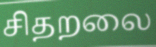
சிதறலை